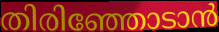
തിരിഞ്ഞോടാൻ